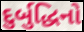
દુર્બુદ્ધિનો